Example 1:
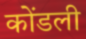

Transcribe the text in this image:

कोंडली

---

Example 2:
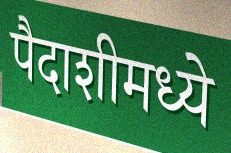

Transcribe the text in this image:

पैदाशीमध्ये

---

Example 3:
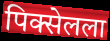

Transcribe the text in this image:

पिक्सेलला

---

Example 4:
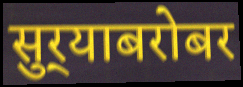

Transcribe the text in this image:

सुर्याबरोबर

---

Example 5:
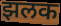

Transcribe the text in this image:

झलक